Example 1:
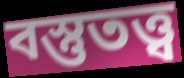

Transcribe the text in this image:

বস্তুতত্ত্ব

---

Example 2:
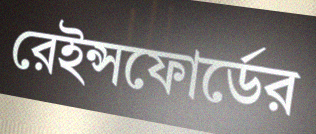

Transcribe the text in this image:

রেইন্সফোর্ডের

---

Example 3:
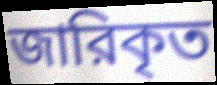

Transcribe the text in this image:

জারিকৃত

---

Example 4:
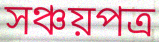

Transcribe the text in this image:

সঞ্চয়পত্র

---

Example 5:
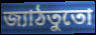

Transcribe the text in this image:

জ্যাঠতুতো